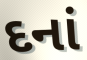
દનાં